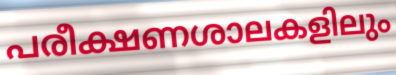
പരീക്ഷണശാലകളിലും